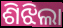
ଶିଝିଲା